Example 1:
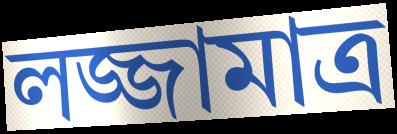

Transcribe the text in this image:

লজ্জামাত্র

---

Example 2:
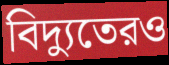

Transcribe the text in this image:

বিদ্যুতেরও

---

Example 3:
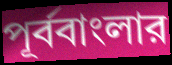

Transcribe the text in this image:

পূর্ববাংলার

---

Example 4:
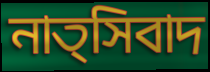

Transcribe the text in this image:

নাত্সিবাদ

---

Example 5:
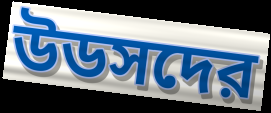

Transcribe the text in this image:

উডসদের